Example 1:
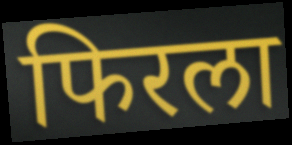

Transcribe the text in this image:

फिरला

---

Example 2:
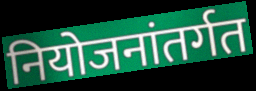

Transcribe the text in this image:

नियोजनांतर्गत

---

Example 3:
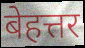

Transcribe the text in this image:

बेहत्तर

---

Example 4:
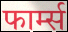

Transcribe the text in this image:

फार्म्स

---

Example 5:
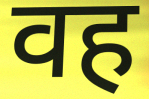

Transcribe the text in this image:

वह